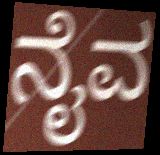
ನೈವ